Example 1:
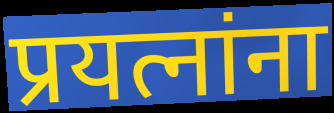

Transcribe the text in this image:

प्रयत्नांना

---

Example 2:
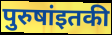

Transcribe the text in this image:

पुरुषांइतकी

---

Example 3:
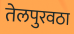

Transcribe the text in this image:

तेलपुरवठा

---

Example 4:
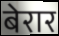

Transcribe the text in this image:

बेरार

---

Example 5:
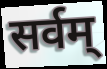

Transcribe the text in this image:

सर्वम्